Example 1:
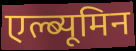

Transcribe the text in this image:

एल्ब्यूमिन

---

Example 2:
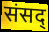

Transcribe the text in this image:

संसद्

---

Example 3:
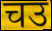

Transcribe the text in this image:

चउ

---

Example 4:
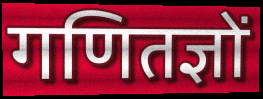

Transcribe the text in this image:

गणितज्ञों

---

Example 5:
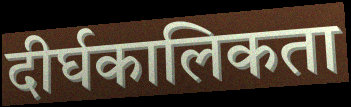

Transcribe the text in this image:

दीर्घकालिकता